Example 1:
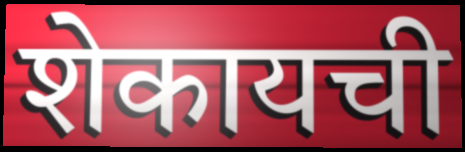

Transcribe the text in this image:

शेकायची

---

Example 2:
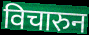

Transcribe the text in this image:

विचारुन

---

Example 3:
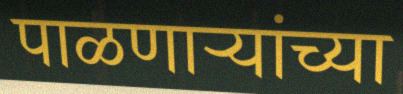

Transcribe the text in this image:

पाळणाऱ्यांच्या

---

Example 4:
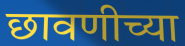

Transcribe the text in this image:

छावणीच्या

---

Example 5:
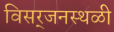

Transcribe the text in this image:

विसर्जनस्थळी